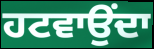
ਹਟਵਾਉਂਦਾ